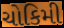
ચોકિમી